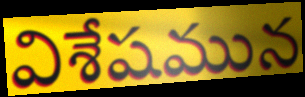
విశేషమున